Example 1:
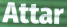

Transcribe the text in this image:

Attar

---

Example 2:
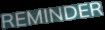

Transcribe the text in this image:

REMINDER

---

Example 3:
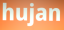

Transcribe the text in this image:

hujan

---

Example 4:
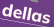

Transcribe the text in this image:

dellas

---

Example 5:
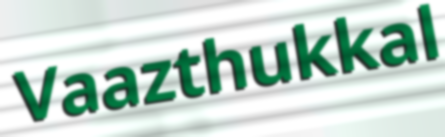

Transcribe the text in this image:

Vaazthukkal